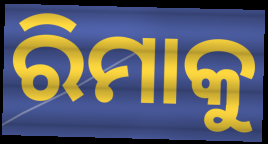
ରିମାକୁ